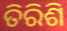
ତିରିଶି